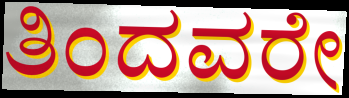
ತಿಂದವರೇ